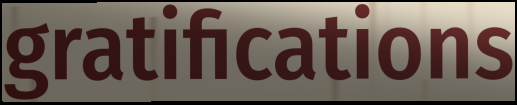
gratifications